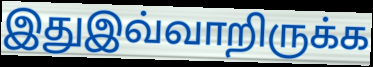
இதுஇவ்வாறிருக்க